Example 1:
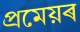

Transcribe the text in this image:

প্ৰমেয়ৰ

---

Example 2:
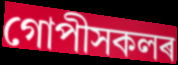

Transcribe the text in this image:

গোপীসকলৰ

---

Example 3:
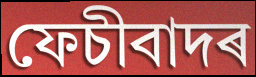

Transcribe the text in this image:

ফেচীবাদৰ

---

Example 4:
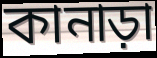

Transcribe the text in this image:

কানাড়া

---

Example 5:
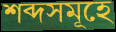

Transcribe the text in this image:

শব্দসমূহে